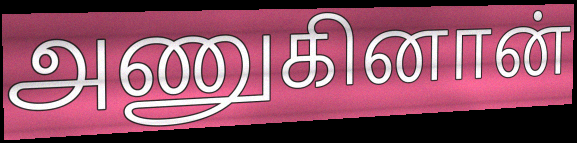
அணுகினான்